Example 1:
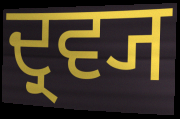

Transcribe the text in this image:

ਦ੍ਰਵ੍ਯ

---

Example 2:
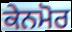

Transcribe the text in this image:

ਕੇਨਮੋਰ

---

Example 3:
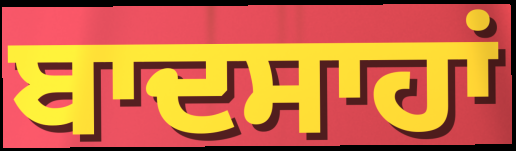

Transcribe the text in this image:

ਬਾਦਸਾਹਾਂ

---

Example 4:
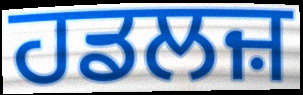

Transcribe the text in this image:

ਹਡਲਜ਼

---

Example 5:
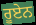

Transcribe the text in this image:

ਰੂਏਨ